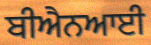
ਬੀਐਨਆਈ